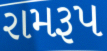
રામરૂપ